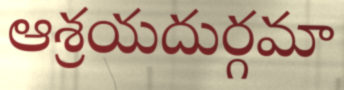
ఆశ్రయదుర్గమా